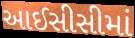
આઈસીસીમાં